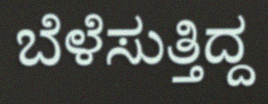
ಬೆಳೆಸುತ್ತಿದ್ದ